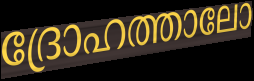
ദ്രോഹത്താലോ